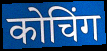
कोचिंग